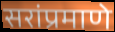
सरांप्रमाणे